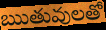
ఋతువులతో